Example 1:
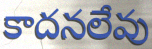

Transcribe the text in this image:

కాదనలేవు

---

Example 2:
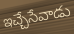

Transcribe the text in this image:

ఇచ్చేసేవాడు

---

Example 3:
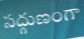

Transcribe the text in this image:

సద్గుణంగా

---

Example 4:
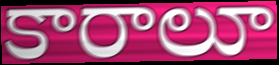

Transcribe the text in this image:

కారాలూ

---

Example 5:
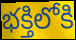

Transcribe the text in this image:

భక్తిలోకి